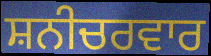
ਸ਼ਨੀਚਰਵਾਰ